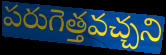
పరుగెత్తవచ్చని